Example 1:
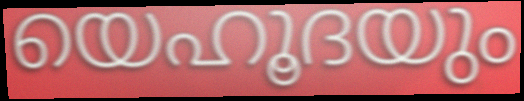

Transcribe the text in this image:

യെഹൂദയും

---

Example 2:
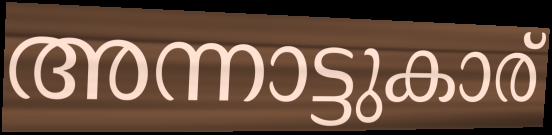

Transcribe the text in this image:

അന്നാട്ടുകാര്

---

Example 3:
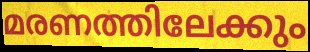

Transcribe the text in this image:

മരണത്തിലേക്കും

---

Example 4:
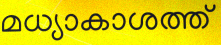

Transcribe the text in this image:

മധ്യാകാശത്ത്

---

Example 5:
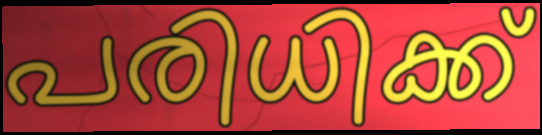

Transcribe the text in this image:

പരിധിക്ക്